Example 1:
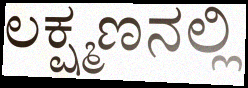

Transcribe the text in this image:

ಲಕ್ಷ್ಮಣನಲ್ಲಿ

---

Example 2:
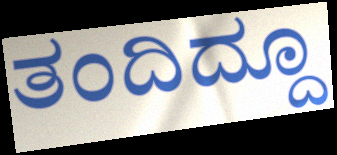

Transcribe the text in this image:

ತಂದಿದ್ದೂ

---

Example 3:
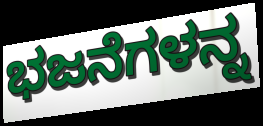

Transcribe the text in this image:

ಭಜನೆಗಳನ್ನ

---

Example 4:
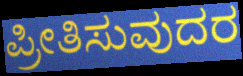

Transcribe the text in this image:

ಪ್ರೀತಿಸುವುದರ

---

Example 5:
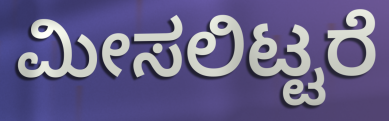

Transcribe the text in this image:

ಮೀಸಲಿಟ್ಟರೆ